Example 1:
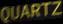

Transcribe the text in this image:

QUARTZ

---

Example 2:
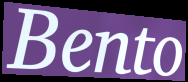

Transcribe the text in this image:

Bento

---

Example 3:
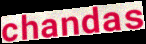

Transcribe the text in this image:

chandas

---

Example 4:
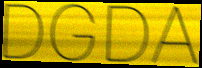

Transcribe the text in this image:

DGDA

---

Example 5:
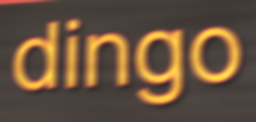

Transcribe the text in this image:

dingo